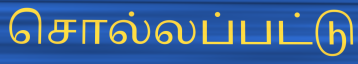
சொல்லப்பட்டு